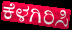
ಕೆಳಗಿರಿಸಿ